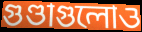
গুণ্ডাগুলোও